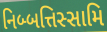
નિબ્બત્તિસ્સામિ